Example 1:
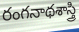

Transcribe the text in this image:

రంగనాథశాస్త్రి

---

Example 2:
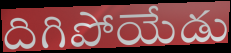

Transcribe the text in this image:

దిగిపోయేడు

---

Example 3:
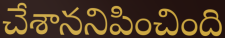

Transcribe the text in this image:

చేశాననిపించింది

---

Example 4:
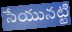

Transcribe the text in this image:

సేయునట్టి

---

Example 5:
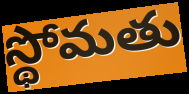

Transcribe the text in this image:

స్థోమతు